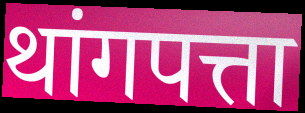
थांगपत्ता